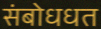
संबोधधत